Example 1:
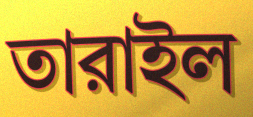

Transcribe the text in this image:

তারাইল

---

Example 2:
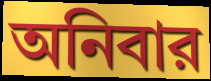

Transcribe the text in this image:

অনিবার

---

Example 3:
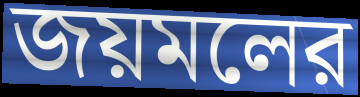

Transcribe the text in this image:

জয়মলের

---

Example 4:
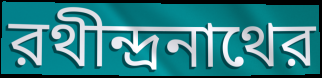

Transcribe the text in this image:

রথীন্দ্রনাথের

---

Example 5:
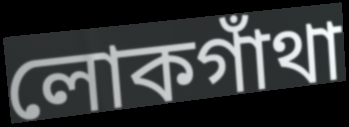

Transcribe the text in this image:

লোকগাঁথা